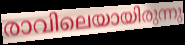
രാവിലെയായിരുന്നു